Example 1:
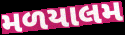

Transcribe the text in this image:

મળયાલમ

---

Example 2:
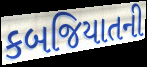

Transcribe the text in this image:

કબજિયાતની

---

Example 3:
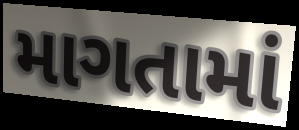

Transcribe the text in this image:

માગતામાં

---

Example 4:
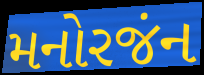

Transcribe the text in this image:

મનોરજંન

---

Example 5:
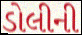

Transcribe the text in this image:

ડોલીની